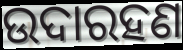
ଉଦାରହଣ